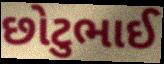
છોટુભાઈ